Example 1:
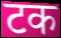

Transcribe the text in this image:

टक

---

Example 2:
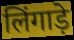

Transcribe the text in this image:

लिंगाड़े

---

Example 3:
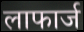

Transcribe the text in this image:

लाफार्ज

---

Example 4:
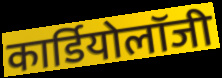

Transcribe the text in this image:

कार्डियोलॉजी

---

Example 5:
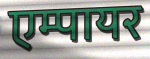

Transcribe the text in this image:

एम्पायर